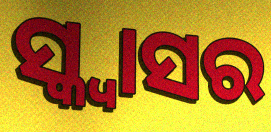
ସ୍କ୍ବାସର